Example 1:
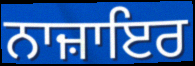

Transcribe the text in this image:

ਨਾਜ਼ਾਇਰ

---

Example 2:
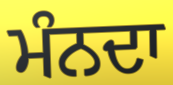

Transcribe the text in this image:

ਮੰਨਦਾ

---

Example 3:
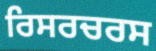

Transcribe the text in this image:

ਰਿਸਰਚਰਸ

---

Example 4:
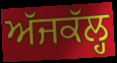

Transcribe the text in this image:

ਅੱਜਕੱਲ੍ਹ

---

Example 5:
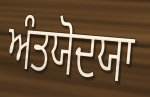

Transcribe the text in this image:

ਅੰਤਯੋਦਯਾ